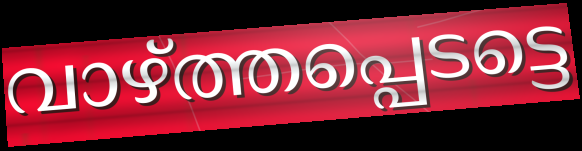
വാഴ്ത്തപ്പെടട്ടെ